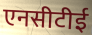
एनसीटीई